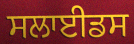
ਸਲਾਈਡਸ